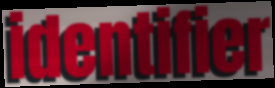
identifier